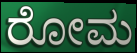
ರೋಮ